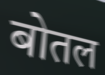
बोतल